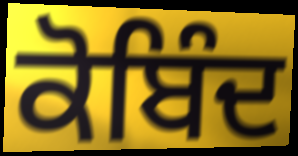
ਕੋਬਿੰਦ